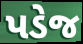
પડેજ